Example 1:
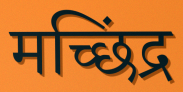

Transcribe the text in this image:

मच्छिंद्र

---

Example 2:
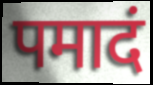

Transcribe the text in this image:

पमादं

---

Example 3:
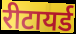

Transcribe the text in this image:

रीटायर्ड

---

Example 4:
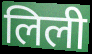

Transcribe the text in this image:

लिली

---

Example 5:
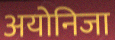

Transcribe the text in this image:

अयोनिजा